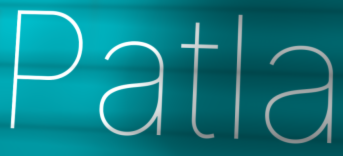
Patla